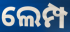
ଲେମ୍ପ